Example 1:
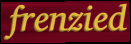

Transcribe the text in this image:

frenzied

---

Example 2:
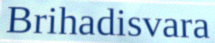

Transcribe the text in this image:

Brihadisvara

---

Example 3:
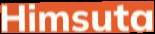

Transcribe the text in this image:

Himsuta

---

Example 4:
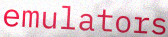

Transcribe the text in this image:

emulators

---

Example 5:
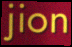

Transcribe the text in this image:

jion